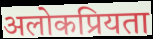
अलोकप्रियता